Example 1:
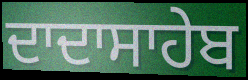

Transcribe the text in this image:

ਦਾਦਾਸਾਹੇਬ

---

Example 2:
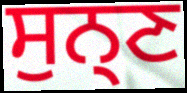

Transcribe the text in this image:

ਸੁਨ੍ਣ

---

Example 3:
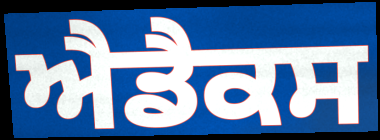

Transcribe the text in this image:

ਐਡੈਕਸ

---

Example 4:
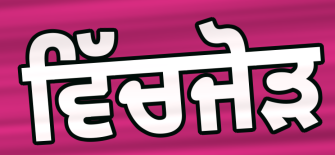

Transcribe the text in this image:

ਵਿੱਚਜੋੜ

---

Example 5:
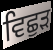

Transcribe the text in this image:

ਵਿਛੁੜ